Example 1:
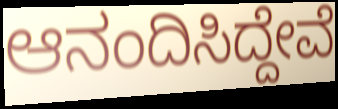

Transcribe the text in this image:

ಆನಂದಿಸಿದ್ದೇವೆ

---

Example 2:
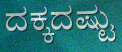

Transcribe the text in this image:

ದಕ್ಕದಷ್ಟು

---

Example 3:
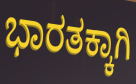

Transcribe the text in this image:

ಭಾರತಕ್ಕಾಗಿ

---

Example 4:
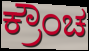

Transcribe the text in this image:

ಕ್ರೌಂಚ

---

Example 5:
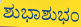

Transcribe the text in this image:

ಶುಭಾಶುಭಂ